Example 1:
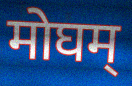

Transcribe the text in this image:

मोघम्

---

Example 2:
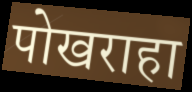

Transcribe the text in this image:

पोखराहा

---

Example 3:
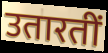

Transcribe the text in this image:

उतारतीं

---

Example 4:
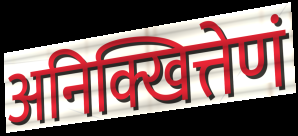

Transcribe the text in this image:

अनिक्खित्तेणं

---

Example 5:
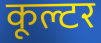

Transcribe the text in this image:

कूल्‍टर